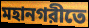
মহানগরীতে